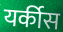
यर्कीस